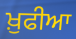
ਖ਼ੁਫੀਆ